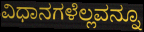
ವಿಧಾನಗಳೆಲ್ಲವನ್ನೂ